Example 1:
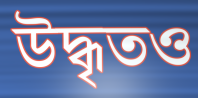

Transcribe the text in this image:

উদ্ধৃতও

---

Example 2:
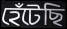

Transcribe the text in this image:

হেঁটেছি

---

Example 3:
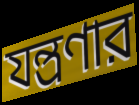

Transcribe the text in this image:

যন্ত্রণার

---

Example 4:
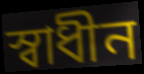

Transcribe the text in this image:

স্বাধীন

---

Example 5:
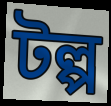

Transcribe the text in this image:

টল্প